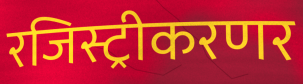
रजिस्ट्रीकरणर